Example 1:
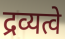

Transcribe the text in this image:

द्रव्यत्वे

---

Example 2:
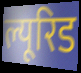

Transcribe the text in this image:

ल्यूरिड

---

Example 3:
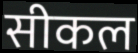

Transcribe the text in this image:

सीकल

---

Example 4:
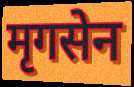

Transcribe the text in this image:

मृगसेन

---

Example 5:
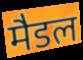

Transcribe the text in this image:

मैडल